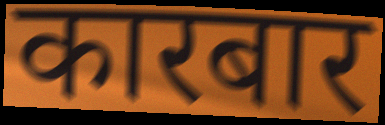
कारबार